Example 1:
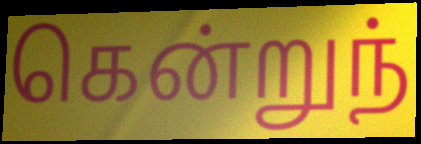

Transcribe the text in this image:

கென்றுந்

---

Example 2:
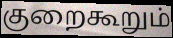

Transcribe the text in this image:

குறைகூறும்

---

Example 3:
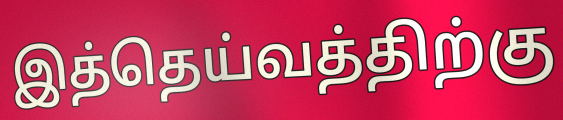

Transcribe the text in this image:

இத்தெய்வத்திற்கு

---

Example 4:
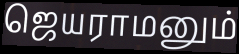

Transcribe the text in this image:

ஜெயராமனும்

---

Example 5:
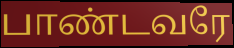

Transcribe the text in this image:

பாண்டவரே